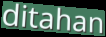
ditahan